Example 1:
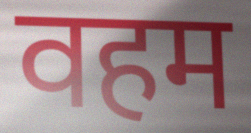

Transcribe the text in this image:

वहम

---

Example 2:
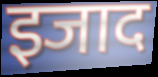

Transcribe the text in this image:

इजाद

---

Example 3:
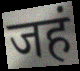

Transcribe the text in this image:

जहं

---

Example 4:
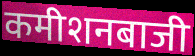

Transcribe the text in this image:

कमीशनबाजी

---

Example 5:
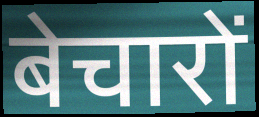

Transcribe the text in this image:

बेचारों